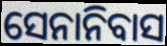
ସେନାନିବାସ